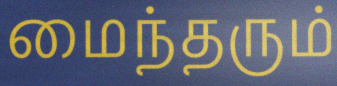
மைந்தரும்